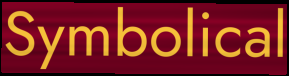
Symbolical